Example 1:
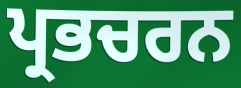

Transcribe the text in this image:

ਪ੍ਰਭਚਰਨ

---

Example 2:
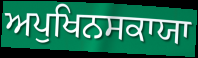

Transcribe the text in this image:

ਅਪੁਖਿਨਸਕਾਯਾ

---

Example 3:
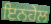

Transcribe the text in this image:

ਇਨਹੇਲ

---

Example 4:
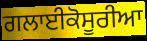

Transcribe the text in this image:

ਗਲਾਈਕੋਸੂਰੀਆ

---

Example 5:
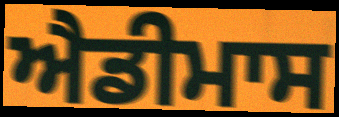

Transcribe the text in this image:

ਐਡੀਮਾਸ